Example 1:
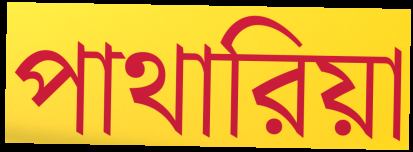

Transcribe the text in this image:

পাথারিয়া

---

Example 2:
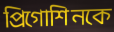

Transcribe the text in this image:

প্রিগোশিনকে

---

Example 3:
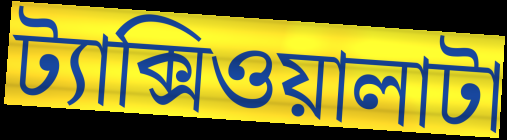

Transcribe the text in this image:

ট্যাক্সিওয়ালাটা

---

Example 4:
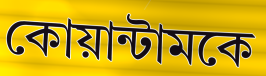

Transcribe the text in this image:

কোয়ান্টামকে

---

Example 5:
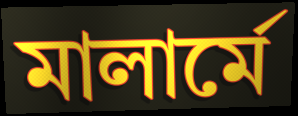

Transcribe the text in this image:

মালার্মে